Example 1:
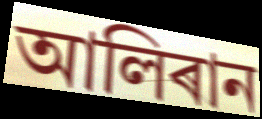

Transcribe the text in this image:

আলিৰান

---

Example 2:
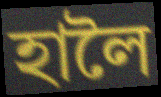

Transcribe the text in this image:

হালৈ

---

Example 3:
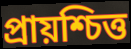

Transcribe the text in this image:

প্ৰায়শ্চিত্ত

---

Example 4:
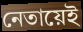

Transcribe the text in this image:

নেতায়েই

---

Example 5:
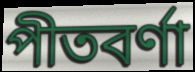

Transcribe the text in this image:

পীতবৰ্ণা